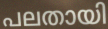
പലതായി